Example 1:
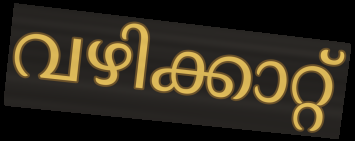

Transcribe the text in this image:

വഴിക്കാറ്റ്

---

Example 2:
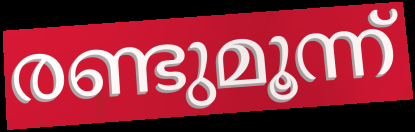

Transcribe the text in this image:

രണ്ടുമൂന്ന്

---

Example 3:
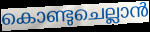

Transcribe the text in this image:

കൊണ്ടുചെല്ലാൻ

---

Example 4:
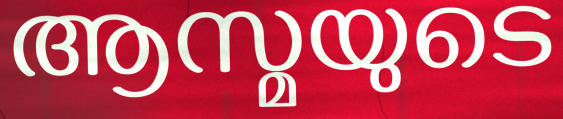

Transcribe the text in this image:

ആസ്മയുടെ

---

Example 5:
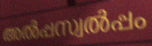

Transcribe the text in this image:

അൽപ്പസ്വൽപ്പം